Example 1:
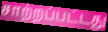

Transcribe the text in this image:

சாற்றப்பட்டது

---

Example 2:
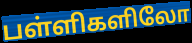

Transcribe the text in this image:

பள்ளிகளிலோ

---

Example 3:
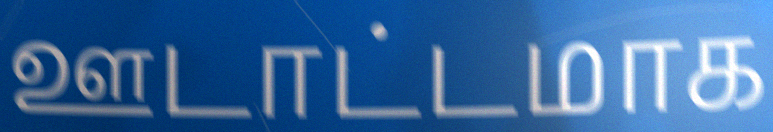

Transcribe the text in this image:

ஊடாட்டமாக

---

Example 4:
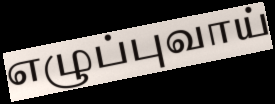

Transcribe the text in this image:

எழுப்புவாய்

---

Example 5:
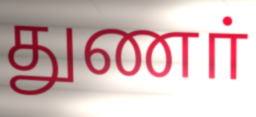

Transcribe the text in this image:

துணர்